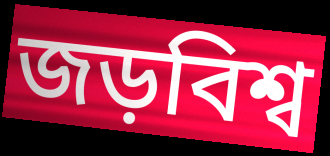
জড়বিশ্ব